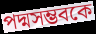
পদ্মসম্ভবকে